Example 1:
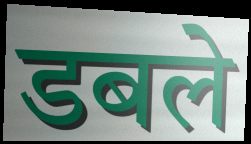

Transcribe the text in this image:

डबले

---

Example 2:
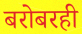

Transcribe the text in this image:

बरोबरही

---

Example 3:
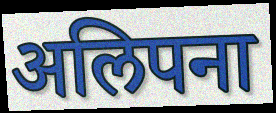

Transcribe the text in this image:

अलिपना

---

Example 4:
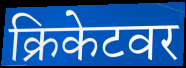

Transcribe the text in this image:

क्रिकेटवर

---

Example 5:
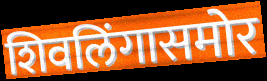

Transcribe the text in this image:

शिवलिंगासमोर